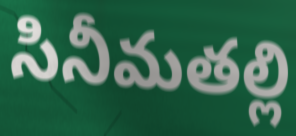
సినీమతల్లి